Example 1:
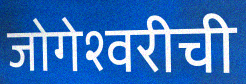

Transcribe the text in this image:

जोगेश्वरीची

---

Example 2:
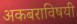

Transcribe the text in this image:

अकबराविषयी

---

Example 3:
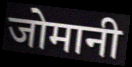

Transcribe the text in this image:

जोमानी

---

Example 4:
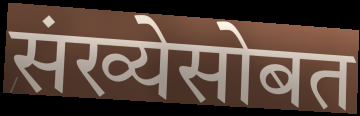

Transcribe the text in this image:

संख्येसोबत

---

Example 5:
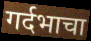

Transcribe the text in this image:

गर्दभाचा